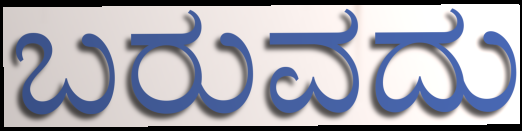
ಬರುವದು